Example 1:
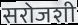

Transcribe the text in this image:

सरोजशी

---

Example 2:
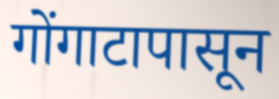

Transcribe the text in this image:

गोंगाटापासून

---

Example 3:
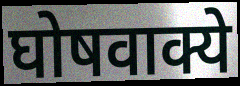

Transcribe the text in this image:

घोषवाक्ये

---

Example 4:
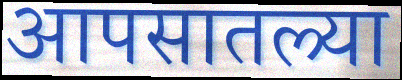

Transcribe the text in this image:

आपसातल्या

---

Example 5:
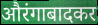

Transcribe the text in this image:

औरंगाबादकर